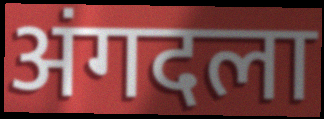
अंगदला